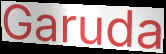
Garuda